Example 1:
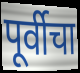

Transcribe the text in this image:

पूर्वीचा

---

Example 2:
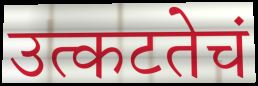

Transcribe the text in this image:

उत्कटतेचं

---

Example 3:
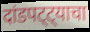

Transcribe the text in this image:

दांडपट्ट्याचा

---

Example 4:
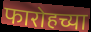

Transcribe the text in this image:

फारोहच्या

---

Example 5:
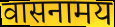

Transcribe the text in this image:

वासनामय